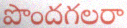
పొందగలరా